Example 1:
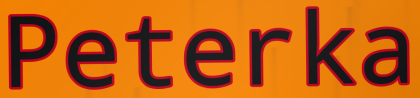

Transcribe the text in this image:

Peterka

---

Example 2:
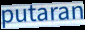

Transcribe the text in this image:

putaran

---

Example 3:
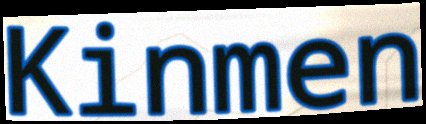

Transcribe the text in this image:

Kinmen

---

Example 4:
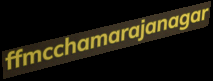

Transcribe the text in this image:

ffmcchamarajanagar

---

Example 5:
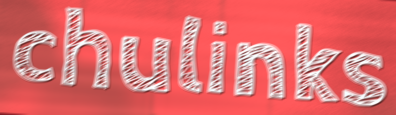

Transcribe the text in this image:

chulinks